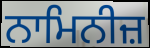
ਨਾਮਿਨੀਜ਼